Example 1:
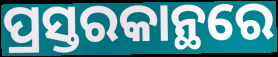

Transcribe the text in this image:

ପ୍ରସ୍ତରକାନ୍ଥରେ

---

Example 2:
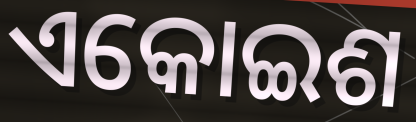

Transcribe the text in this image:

ଏକୋଇଶ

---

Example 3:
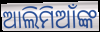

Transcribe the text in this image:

ଆଲିମିଆଁଙ୍କ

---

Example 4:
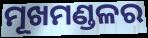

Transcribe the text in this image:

ମୂଖମଣ୍ଡଳର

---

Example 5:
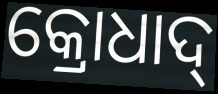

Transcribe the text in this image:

କ୍ରୋଧାଦ୍